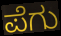
ಪೆಗು